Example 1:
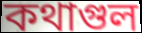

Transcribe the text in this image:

কথাগুল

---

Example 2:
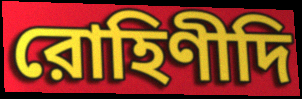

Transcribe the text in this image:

রোহিণীদি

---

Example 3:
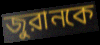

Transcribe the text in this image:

জুরানকে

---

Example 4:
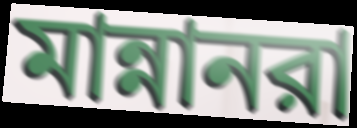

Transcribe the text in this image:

মান্নানরা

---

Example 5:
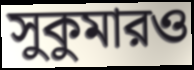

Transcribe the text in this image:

সুকুমারও